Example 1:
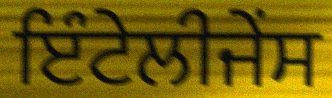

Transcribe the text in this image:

ਇੰਟੇਲੀਜੇੰਸ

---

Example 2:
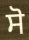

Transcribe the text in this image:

ਸੋ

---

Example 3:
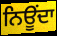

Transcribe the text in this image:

ਨਿਊਂਦਾ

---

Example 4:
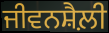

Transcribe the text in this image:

ਜੀਵਨਸ਼ੈਲ਼ੀ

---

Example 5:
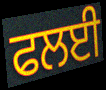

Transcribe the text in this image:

ਫਲਈ